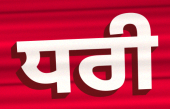
ਧਰੀ